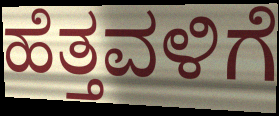
ಹೆತ್ತವಳಿಗೆ